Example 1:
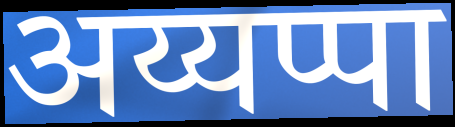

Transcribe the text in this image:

अय्यप्पा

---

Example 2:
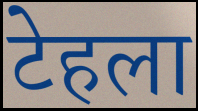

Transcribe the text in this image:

टेहला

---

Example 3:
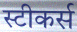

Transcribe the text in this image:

स्टीकर्स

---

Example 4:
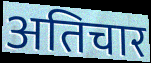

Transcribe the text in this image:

अतिचार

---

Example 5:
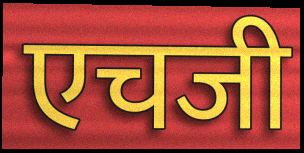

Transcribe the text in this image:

एचजी